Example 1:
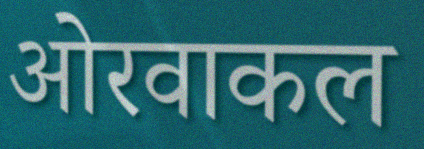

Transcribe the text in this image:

ओरवाकल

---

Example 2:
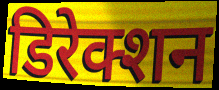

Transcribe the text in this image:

डिरेक्शन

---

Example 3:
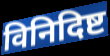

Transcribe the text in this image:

विनिदिष्ट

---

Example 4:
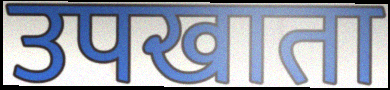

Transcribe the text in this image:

उपखाता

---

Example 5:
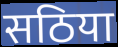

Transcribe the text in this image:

सठिया